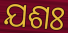
ଯଶଃ